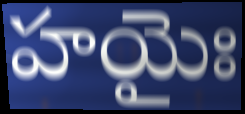
హయైః